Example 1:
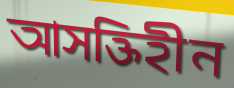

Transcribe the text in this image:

আসক্তিহীন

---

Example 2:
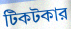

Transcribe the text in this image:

টিকটকার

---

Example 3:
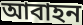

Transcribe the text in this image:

আবাহন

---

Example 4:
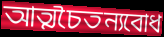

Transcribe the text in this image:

আত্মচৈতন্যবোধ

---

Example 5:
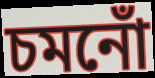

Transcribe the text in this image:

চমনোঁ